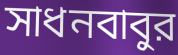
সাধনবাবুর